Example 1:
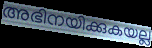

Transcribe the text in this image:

അഭിനയിക്കുകയല്ല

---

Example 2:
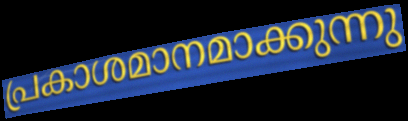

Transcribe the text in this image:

പ്രകാശമാനമാക്കുന്നു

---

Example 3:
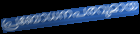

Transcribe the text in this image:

പ്രബോധനപരവുമായ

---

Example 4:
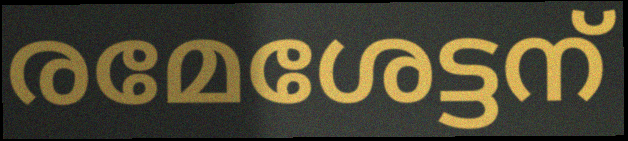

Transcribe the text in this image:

രമേശേട്ടന്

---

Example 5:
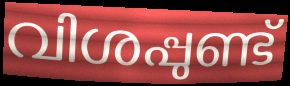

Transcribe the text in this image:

വിശപ്പുണ്ട്